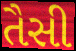
તૈસી